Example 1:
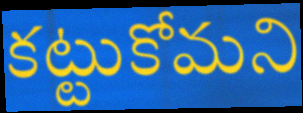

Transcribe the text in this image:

కట్టుకోమని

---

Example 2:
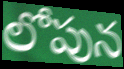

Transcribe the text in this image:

లోపున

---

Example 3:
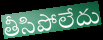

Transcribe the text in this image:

తీసిపోలేదు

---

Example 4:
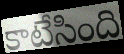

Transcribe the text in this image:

కాటేసింది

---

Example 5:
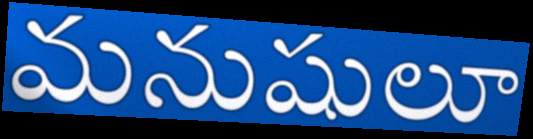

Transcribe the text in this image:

మనుషులూ